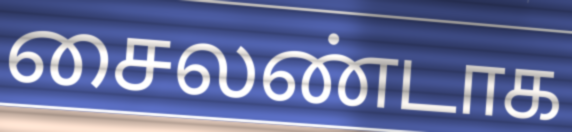
சைலண்டாக